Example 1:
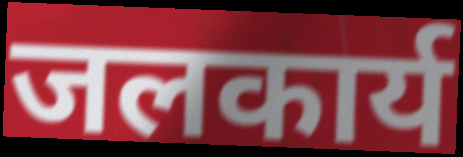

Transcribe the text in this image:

जलकार्य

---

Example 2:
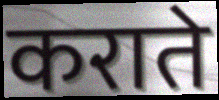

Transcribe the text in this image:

कराते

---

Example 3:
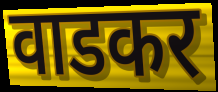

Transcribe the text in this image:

वाडकर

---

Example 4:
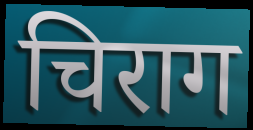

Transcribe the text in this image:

चिराग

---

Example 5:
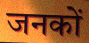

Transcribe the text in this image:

जनकों